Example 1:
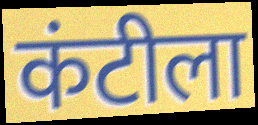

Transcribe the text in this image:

कंटीला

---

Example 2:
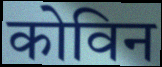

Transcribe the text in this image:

कोविन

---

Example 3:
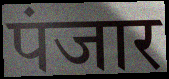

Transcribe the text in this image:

पंजार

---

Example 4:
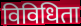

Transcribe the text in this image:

विविधिता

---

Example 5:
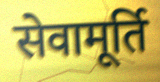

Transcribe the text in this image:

सेवामूर्ति